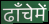
ढाँचेमें